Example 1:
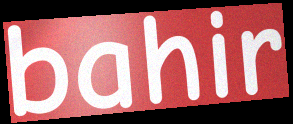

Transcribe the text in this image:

bahir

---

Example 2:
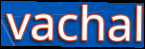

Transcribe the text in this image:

vachal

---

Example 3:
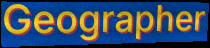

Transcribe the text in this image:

Geographer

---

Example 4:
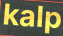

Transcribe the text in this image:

kalp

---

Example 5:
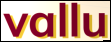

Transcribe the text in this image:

vallu